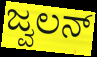
ಜ್ವಲನ್